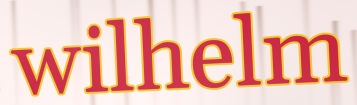
wilhelm